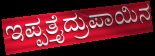
ಇಪ್ಪತ್ತೈದ್ರುಪಾಯಿನ